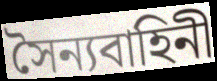
সৈন্যবাহিনী